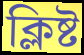
ক্লিষ্ট